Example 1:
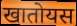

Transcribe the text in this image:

खातोयस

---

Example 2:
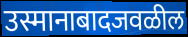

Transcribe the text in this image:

उस्मानाबादजवळील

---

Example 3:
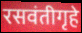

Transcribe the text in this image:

रसवंतीगृहे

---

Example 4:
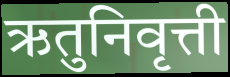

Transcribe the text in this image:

ऋतुनिवृत्ती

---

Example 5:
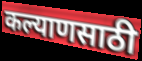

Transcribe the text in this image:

कल्याणसाठी